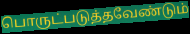
பொருட்படுத்தவேண்டும்